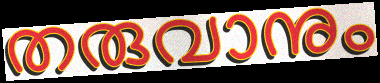
തരുവാനും